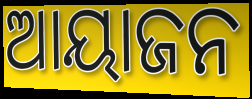
ଆୟାଜନ